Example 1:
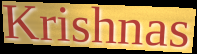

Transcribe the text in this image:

Krishnas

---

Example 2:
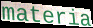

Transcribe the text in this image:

materia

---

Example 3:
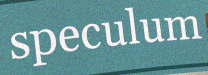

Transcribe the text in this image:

speculum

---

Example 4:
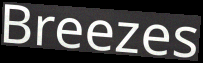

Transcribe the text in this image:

Breezes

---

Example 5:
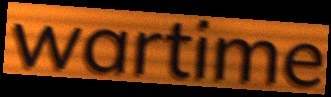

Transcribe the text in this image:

wartime